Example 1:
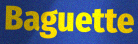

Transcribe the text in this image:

Baguette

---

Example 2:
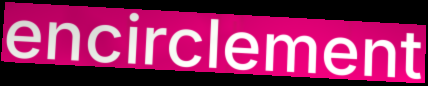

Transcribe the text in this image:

encirclement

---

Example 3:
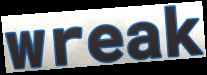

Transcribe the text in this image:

wreak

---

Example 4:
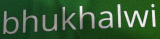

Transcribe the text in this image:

bhukhalwi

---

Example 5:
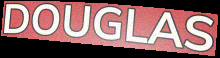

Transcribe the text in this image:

DOUGLAS